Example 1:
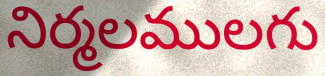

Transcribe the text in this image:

నిర్మలములగు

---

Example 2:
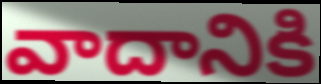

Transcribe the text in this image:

వాదానికి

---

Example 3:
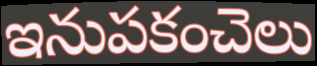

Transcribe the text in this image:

ఇనుపకంచెలు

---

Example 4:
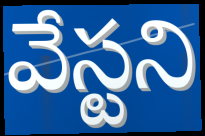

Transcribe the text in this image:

వేస్టని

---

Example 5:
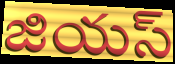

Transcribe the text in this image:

జియస్